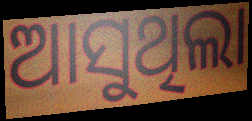
ଆସୁଥିଲା